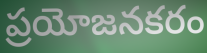
ప్రయోజనకరం